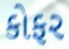
કોફર